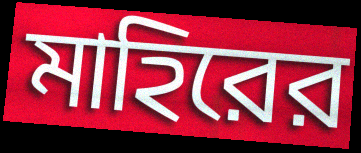
মাহিরের